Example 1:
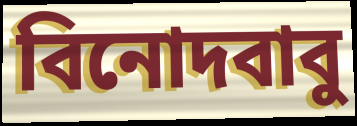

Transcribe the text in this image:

বিনোদবাবু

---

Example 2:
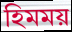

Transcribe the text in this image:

হিমময়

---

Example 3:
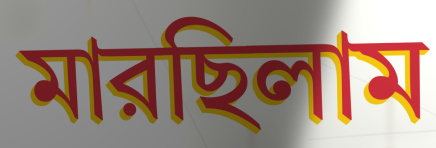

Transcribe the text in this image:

মারছিলাম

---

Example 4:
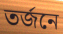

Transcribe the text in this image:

তর্জনে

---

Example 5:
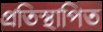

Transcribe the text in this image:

প্রতিস্থাপিত